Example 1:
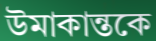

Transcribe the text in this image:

উমাকান্তকে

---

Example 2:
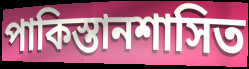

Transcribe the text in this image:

পাকিস্তানশাসিত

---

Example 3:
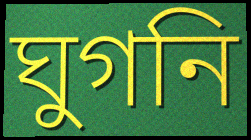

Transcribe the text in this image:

ঘুগনি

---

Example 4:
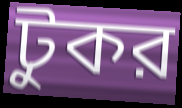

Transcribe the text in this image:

টুকর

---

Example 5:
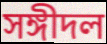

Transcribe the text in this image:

সঙ্গীদল